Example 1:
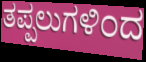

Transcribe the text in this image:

ತಪ್ಪಲುಗಳಿಂದ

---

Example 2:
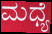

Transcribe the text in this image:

ಮಧ್ಯೆ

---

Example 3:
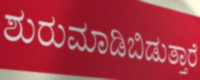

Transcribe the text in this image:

ಶುರುಮಾಡಿಬಿಡುತ್ತಾರೆ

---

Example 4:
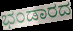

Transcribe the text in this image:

ಭಂಡಾರದ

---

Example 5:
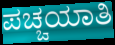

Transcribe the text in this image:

ಪಚ್ಚಯಾತಿ